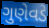
ગુણેવડે